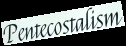
Pentecostalism